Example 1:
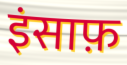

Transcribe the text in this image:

इंसाफ़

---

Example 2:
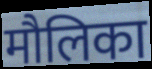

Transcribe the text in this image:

मौलिका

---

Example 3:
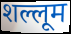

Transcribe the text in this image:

शल्लूम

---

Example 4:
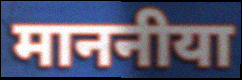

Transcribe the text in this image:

माननीया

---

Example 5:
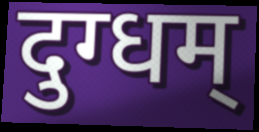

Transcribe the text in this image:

दुग्धम्